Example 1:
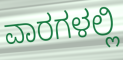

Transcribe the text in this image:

ವಾರಗಳಲ್ಲಿ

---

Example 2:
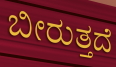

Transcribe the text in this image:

ಬೀರುತ್ತದೆ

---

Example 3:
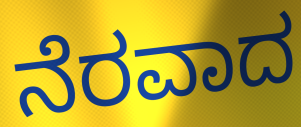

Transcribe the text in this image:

ನೆರವಾದ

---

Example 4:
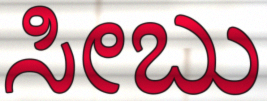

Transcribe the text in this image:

ಸೀಬು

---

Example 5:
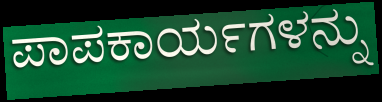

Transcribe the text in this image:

ಪಾಪಕಾರ್ಯಗಳನ್ನು